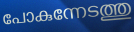
പോകുന്നേടത്തു